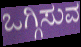
ಒಗ್ಗಿಸುವ